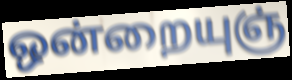
ஒன்றையுஞ்